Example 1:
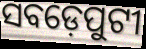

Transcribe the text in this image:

ସବଡ଼େପୁଟୀ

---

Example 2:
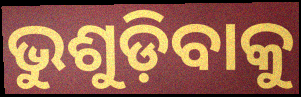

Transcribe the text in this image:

ଭୁଶୁଡ଼ିବାକୁ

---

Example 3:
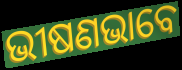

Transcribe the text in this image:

ଭୀଷଣଭାବେ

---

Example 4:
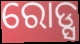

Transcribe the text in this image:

ରୋଡ୍ସ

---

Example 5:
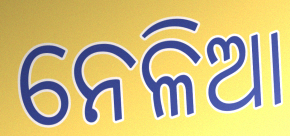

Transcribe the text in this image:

ନେଳିଆ